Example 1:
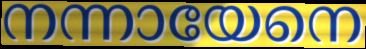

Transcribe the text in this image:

നന്നായേനെ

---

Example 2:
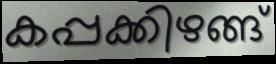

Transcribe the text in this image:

കപ്പക്കിഴങ്ങ്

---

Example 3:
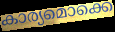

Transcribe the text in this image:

കാര്യമൊക്കെ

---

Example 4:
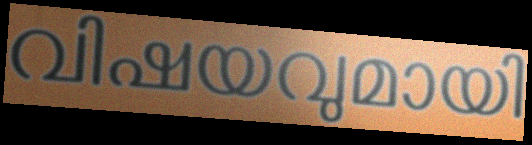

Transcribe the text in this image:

വിഷയവുമായി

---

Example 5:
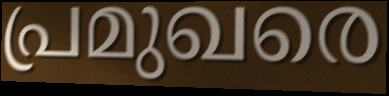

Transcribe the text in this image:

പ്രമുഖരെ